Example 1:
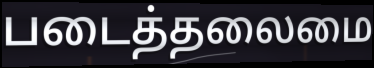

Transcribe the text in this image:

படைத்தலைமை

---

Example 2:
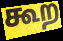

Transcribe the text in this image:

கூற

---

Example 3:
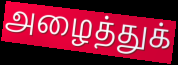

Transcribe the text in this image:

அழைத்துக்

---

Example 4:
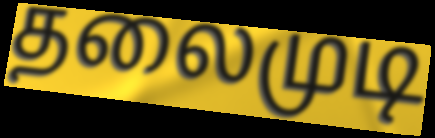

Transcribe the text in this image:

தலைமுடி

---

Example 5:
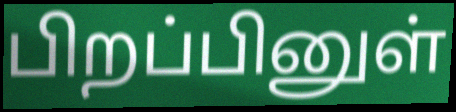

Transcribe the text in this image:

பிறப்பினுள்